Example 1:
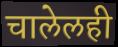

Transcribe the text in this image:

चालेलही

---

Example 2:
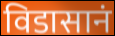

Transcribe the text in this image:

विडासानं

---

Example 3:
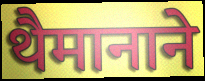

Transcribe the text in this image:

थैमानाने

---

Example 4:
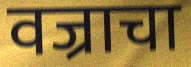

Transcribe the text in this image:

वज्राचा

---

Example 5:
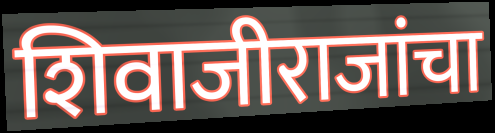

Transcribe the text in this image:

शिवाजीराजांचा